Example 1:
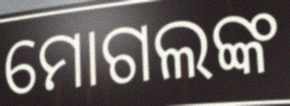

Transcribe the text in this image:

ମୋଗଲଙ୍କ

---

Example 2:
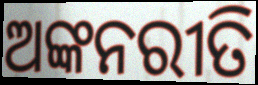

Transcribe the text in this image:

ଅଙ୍କନରୀତି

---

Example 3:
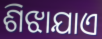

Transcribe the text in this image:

ଶିଝାଯାଏ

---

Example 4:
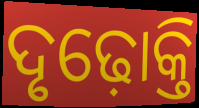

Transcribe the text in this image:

ଦୃଢ଼ୋକ୍ତି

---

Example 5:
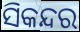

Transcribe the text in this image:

ସିକନ୍ଦର